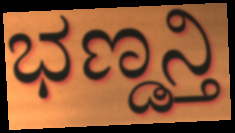
ಭಣ್ಡನ್ತಿ